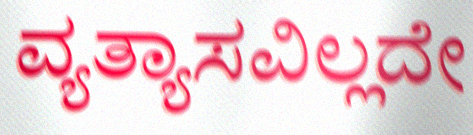
ವ್ಯತ್ಯಾಸವಿಲ್ಲದೇ